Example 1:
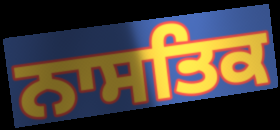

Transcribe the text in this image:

ਨਾਸਤਿਕ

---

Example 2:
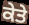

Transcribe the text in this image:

ਕੇਤੇ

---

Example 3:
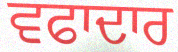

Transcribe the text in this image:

ਵਫਾਦਾਰ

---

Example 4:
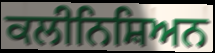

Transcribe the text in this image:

ਕਲੀਨਿਸ਼ਿਅਨ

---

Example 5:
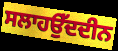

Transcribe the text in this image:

ਸਲਾਹਉੱਦਦੀਨ